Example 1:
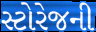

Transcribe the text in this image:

સ્ટોરેજની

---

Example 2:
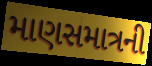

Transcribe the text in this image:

માણસમાત્રની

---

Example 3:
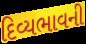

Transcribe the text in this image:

દિવ્યભાવની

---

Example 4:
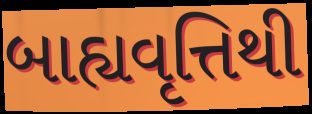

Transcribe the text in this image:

બાહ્યવૃત્તિથી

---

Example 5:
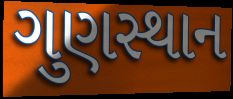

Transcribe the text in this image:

ગુણસ્થાન